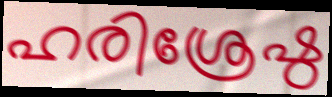
ഹരിശ്രേഷ്ഠ